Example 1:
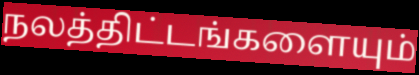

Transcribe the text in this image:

நலத்திட்டங்களையும்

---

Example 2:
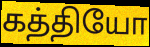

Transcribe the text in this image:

கத்தியோ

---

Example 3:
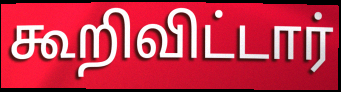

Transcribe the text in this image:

கூறிவிட்டார்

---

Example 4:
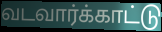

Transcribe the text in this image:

வடவார்க்காட்டு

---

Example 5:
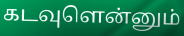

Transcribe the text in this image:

கடவுளென்னும்